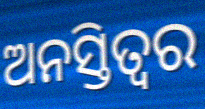
ଅନସ୍ତିତ୍ୱର